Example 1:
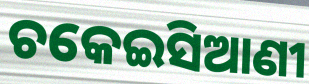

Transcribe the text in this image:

ଚକେଇସିଆଣୀ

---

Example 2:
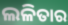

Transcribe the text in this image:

ଲଳିତାର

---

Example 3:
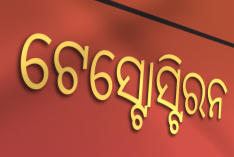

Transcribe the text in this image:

ଟେସ୍ଟୋସ୍ଟିରନ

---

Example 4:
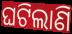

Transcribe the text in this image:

ଘଟିଲାଣି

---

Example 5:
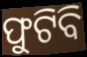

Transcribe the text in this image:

ଫୁଟିବି